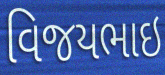
વિજયભાઇ